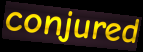
conjured